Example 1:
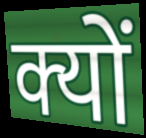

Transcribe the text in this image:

क्‍यों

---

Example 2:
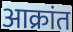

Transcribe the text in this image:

आक्रांत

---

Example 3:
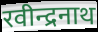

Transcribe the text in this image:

रवीन्द्रनाथ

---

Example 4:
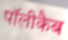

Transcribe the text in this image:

पॉलीकैब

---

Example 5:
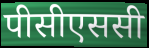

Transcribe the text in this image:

पीसीएससी